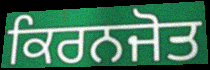
ਕਿਰਨਜੋਤ